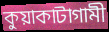
কুয়াকাটাগামী